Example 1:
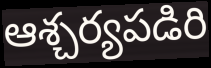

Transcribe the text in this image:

ఆశ్చర్యపడిరి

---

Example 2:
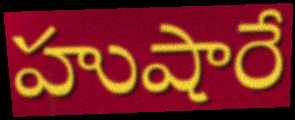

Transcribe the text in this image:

హుషారే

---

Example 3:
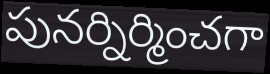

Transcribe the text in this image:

పునర్నిర్మించగా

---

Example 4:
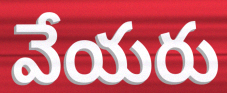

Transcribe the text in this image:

వేయరు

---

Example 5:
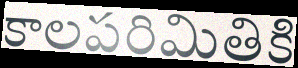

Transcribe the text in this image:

కాలపరిమితికి